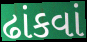
ઢાંકવાં